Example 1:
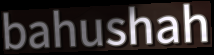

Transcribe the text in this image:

bahushah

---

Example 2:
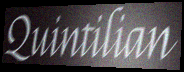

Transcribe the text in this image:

Quintilian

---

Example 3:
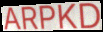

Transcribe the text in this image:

ARPKD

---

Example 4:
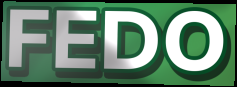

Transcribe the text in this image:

FEDO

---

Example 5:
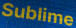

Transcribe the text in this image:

Sublime